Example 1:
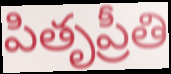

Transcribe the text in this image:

పితృప్రీతి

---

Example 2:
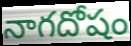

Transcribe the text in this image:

నాగదోషం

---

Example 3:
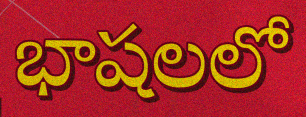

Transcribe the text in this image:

భాషలలో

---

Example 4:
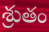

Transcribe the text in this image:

శ్రుతం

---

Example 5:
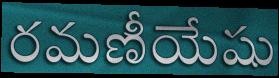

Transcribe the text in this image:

రమణీయేషు